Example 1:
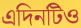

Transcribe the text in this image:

এদিনটিও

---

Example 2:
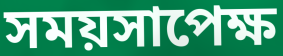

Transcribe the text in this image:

সময়সাপেক্ষ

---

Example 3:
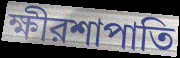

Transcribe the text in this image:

ক্ষীরশাপাতি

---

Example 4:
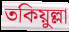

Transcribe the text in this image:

তকিয়ুল্লা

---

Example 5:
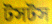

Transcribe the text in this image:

টসটস